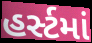
હર્સ્ટમાં